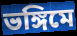
ভঙ্গিমে